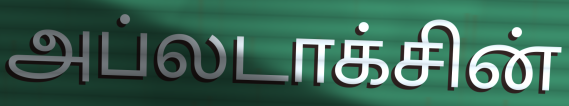
அப்லடாக்சின்